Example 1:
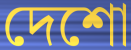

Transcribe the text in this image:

দেশো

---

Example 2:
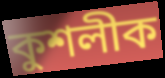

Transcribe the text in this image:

কুশলীক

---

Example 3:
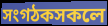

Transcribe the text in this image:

সংগঠকসকলে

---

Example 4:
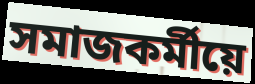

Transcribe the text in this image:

সমাজকৰ্মীয়ে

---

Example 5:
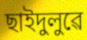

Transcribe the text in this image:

ছাইদুলুৱে